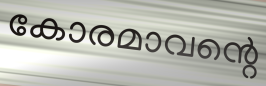
കോരമാവന്റെ